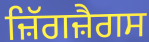
ਜ਼ਿੱਗਜ਼ੈਗਸ